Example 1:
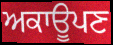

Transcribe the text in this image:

ਅਕਾਊਪਣ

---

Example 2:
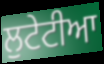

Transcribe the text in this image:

ਲੁਟੇਟੀਆ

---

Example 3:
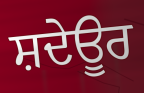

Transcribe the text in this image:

ਸ਼ਦੇਊਰ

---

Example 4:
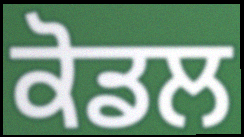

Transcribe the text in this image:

ਕੋਡਲ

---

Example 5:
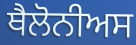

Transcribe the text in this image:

ਥੈਲੋਨੀਅਸ